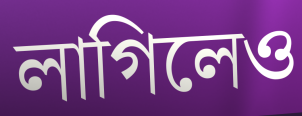
লাগিলেও